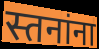
स्तनांना